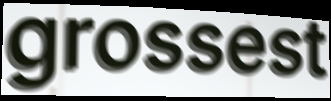
grossest